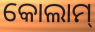
କୋଲାମ୍